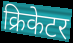
क्रिकेटर